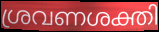
ശ്രവണശക്തി